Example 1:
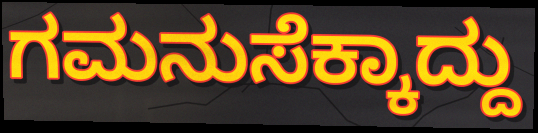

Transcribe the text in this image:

ಗಮನುಸೆಕ್ಕಾದ್ದು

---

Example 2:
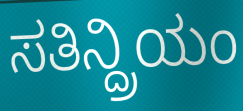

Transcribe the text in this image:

ಸತಿನ್ದ್ರಿಯಂ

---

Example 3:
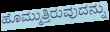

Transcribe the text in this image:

ಹೊಮ್ಮುತ್ತಿರುವುದನ್ನು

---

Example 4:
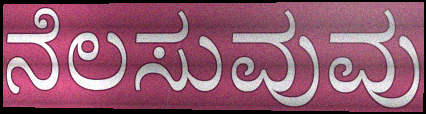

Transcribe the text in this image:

ನೆಲಸುವುವು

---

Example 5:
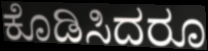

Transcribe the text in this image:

ಕೊಡಿಸಿದರೂ